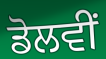
ਡੋਲਵੀਂ